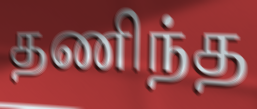
தணிந்த